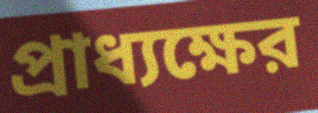
প্রাধ্যক্ষের